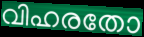
വിഹരതോ